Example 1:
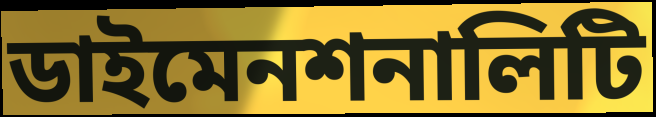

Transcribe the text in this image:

ডাইমেনশনালিটি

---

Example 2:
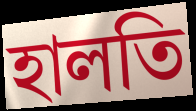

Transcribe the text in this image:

হালতি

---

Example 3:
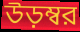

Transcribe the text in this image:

উড়ম্বর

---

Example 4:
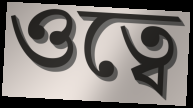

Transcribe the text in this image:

ওত্বে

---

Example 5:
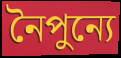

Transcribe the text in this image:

নৈপুন্যে